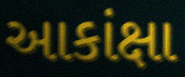
આકાંક્ષા